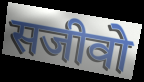
सजीवो